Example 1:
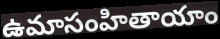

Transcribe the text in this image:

ఉమాసంహితాయాం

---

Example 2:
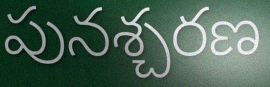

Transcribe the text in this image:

పునశ్చరణ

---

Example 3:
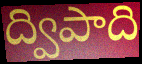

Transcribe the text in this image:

ద్విపాది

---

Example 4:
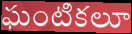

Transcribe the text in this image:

ఘంటికలూ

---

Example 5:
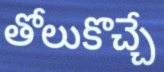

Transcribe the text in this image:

తోలుకొచ్చే